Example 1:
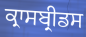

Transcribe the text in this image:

ਕ੍ਰਾਸਬ੍ਰੀਡਸ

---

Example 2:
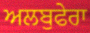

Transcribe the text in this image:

ਅਲਬੁਫੇਰਾ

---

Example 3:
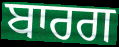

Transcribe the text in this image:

ਬਾਰਗ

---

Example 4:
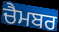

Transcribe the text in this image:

ਚੈਮਬਰ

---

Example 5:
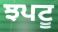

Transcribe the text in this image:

ਝਪਟੂ